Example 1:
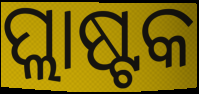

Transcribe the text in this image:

ପ୍ଲାଷ୍ଟକ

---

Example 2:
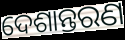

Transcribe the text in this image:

ଦେଶାନ୍ତରଣ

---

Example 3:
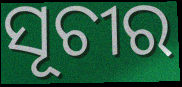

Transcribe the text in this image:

ସୂଚୀର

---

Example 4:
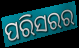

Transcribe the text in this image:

ପରିସରର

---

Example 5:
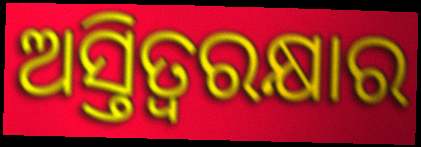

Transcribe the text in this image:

ଅସ୍ତିତ୍ୱରକ୍ଷାର